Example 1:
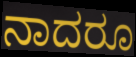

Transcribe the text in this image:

ನಾದರೂ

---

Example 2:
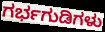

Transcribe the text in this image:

ಗರ್ಭಗುಡಿಗಳು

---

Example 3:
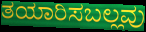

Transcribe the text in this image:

ತಯಾರಿಸಬಲ್ಲವು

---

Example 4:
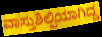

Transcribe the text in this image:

ವಾಸ್ತುಶಿಲ್ಪಿಯಾಗಿದ್ದ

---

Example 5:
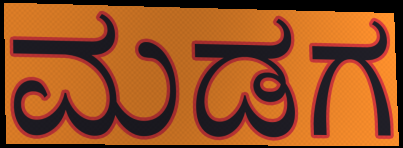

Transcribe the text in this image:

ಮಡಗ